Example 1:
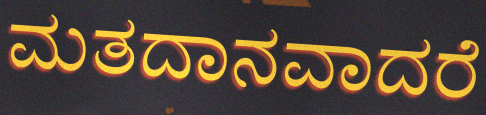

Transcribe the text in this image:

ಮತದಾನವಾದರೆ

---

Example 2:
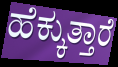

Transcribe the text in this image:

ಹೆಕ್ಕುತ್ತಾರೆ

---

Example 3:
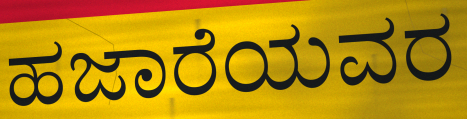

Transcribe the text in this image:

ಹಜಾರೆಯವರ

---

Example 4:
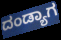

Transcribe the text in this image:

ದಂಡ್ಯಾಗ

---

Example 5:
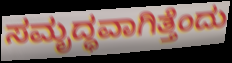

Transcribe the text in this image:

ಸಮೃದ್ಧವಾಗಿತ್ತೆಂದು